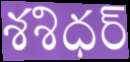
శశిధర్